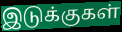
இடுக்குகள்